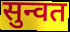
सुन्वत